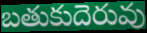
బతుకుదెరువు